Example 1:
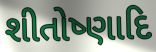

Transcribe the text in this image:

શીતોષ્ણાદિ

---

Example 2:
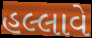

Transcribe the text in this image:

હલ્લાવે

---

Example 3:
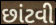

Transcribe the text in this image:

છાંટવી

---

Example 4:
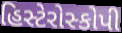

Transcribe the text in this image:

હિસ્ટેરોસ્કોપી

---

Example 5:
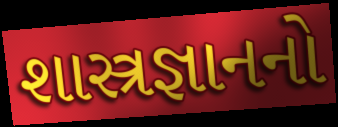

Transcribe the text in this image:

શાસ્ત્રજ્ઞાનનો